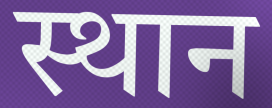
स्‍थान